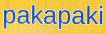
pakapaki